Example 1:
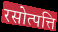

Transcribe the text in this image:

रसोत्पत्ति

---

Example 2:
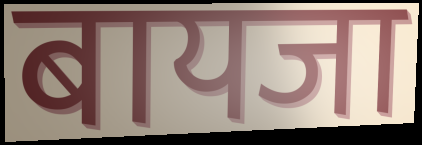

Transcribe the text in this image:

बायजा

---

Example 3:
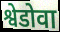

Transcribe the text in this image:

श्वेडोवा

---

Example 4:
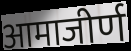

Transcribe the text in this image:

आमाजीर्ण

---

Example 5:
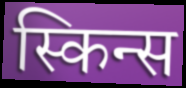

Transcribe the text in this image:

स्किन्स